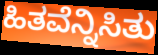
ಹಿತವೆನ್ನಿಸಿತು